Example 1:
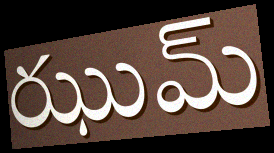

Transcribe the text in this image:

ఝుమ్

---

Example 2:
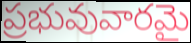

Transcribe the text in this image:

ప్రభువువారమై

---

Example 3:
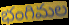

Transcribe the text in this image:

భంగిమల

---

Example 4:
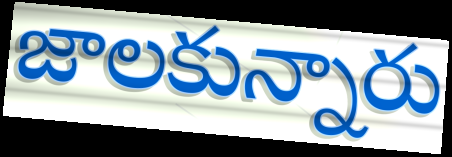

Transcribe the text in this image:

జాలకున్నారు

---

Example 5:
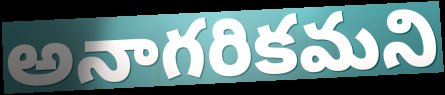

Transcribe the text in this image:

అనాగరికమని